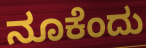
ನೂಕೆಂದು